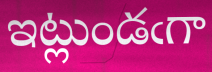
ఇట్లుండఁగా